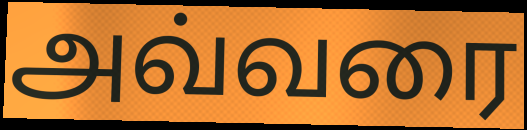
அவ்வரை